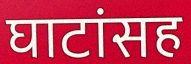
घाटांसह